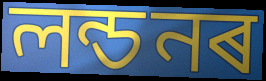
লন্ডনৰ